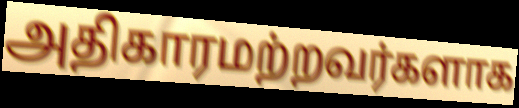
அதிகாரமற்றவர்களாக